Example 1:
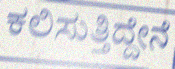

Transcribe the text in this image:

ಕಲಿಸುತ್ತಿದ್ದೇನೆ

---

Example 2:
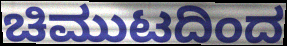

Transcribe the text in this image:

ಚಿಮುಟದಿಂದ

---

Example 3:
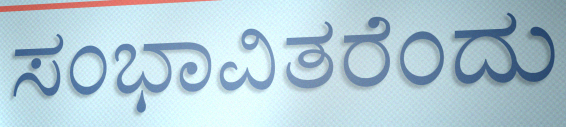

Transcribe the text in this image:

ಸಂಭಾವಿತರೆಂದು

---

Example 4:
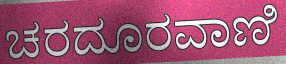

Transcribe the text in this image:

ಚರದೂರವಾಣಿ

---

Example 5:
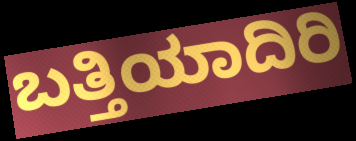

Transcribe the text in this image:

ಬತ್ತಿಯಾದಿರಿ